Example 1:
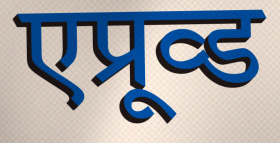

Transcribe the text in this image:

एप्रूव्ड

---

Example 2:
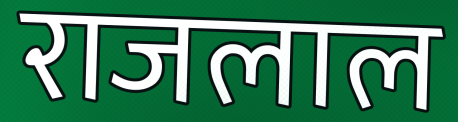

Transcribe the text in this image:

राजलाल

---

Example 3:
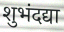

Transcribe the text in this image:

शुभंदद्या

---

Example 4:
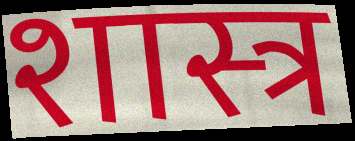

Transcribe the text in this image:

शास्‍त्र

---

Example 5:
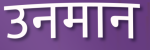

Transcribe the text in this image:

उनमान